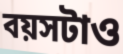
বয়সটাও